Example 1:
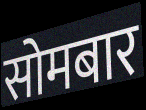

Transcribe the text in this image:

सोमबार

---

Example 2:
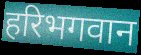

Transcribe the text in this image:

हरिभगवान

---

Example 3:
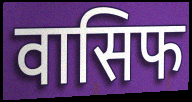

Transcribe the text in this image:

वासिफ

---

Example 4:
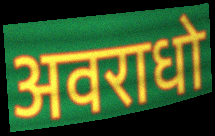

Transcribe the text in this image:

अवराधो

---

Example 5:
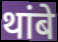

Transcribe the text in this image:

थांबे